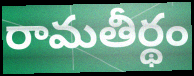
రామతీర్థం